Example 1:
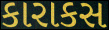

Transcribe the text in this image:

કારાકસ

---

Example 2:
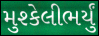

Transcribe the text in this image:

મુશ્કેલીભર્યું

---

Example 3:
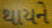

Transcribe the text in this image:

થાયને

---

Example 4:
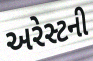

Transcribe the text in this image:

અરેસ્ટની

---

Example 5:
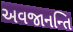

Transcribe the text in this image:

અવજાનન્તિ